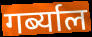
गर्ब्याल